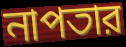
নাপতার